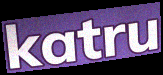
katru